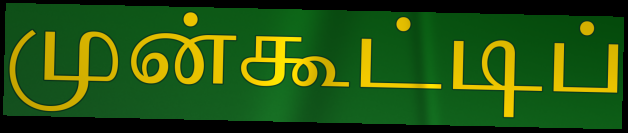
முன்கூட்டிப்